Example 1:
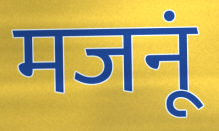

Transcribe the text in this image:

मजनूं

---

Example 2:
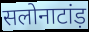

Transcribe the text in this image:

सलोनाटांड़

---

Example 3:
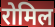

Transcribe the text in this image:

रोमिल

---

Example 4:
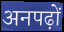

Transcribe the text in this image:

अनपढ़ों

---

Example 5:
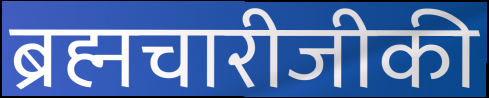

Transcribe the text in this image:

ब्रह्मचारीजीकी